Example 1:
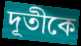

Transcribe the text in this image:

দূতীকে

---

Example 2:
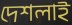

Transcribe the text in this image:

দেশলাই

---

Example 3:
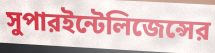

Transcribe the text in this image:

সুপারইন্টেলিজেন্সের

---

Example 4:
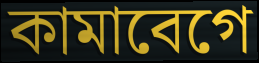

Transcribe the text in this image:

কামাবেগে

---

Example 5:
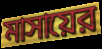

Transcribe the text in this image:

মাসায়ের